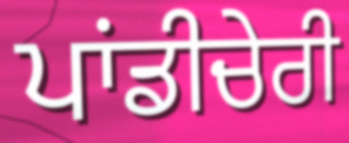
ਪਾਂਡੀਚੇਰੀ